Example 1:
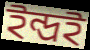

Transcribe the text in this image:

ইন্দ্ৰই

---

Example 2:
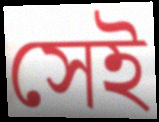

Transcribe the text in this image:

সেই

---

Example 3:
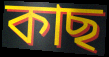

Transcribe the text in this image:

কাছ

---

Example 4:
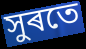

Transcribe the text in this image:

সুৰতে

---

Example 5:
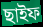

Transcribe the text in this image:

ছাইফ